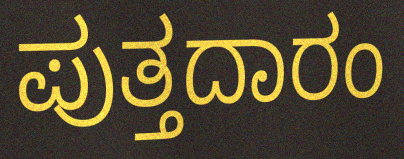
ಪುತ್ತದಾರಂ